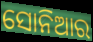
ସୋନିଆର